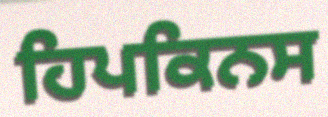
ਹਿਪਕਿਨਸ